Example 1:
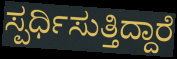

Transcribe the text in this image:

ಸ್ಪರ್ಧಿಸುತ್ತಿದ್ದಾರೆ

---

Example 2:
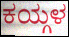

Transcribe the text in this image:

ಕಯ್ಗಳ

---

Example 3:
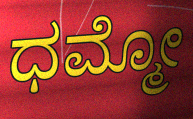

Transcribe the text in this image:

ಧಮ್ಮೋ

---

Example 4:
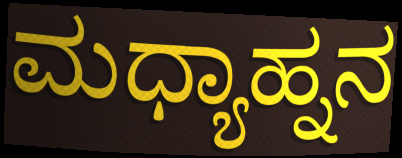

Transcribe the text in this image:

ಮಧ್ಯಾಹ್ನನ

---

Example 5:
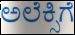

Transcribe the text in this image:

ಅಲೆಕ್ಸಿಗೆ